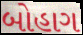
બોહાગ